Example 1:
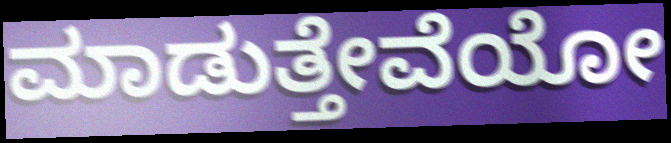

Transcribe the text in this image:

ಮಾಡುತ್ತೇವೆಯೋ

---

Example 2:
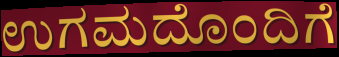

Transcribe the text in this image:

ಉಗಮದೊಂದಿಗೆ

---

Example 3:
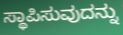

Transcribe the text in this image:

ಸ್ಥಾಪಿಸುವುದನ್ನು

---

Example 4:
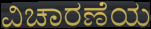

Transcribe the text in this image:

ವಿಚಾರಣೆಯ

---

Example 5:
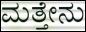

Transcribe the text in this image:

ಮತ್ತೇನು